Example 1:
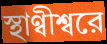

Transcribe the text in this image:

স্থাণ্বীশ্বরে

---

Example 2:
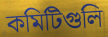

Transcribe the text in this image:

কমিটিগুলি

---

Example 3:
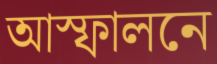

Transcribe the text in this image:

আস্ফালনে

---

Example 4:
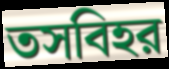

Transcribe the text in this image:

তসবিহর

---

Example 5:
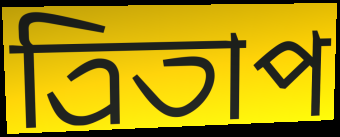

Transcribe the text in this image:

ত্রিতাপ